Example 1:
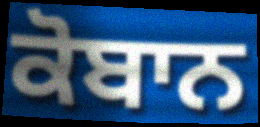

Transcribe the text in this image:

ਕੋਬਾਨ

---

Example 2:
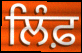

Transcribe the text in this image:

ਲਿੰਫ਼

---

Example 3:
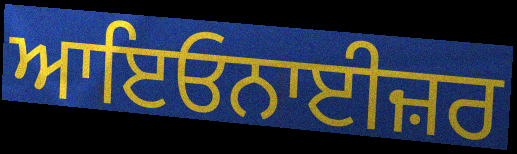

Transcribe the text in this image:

ਆਇਓਨਾਈਜ਼ਰ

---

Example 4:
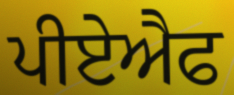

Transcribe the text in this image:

ਪੀਏਐਫ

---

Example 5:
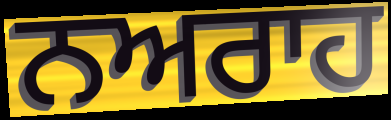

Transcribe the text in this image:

ਨਅਰਾਹ